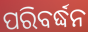
ପରିବର୍ଦ୍ଧନ